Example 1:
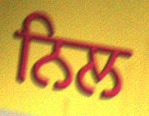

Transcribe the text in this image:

ਨਿਲ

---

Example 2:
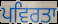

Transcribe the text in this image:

ਪਵਿਰਤਾ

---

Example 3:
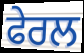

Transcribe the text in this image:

ਫੇਰਲ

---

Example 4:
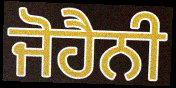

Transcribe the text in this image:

ਜੋਹੈਨੀ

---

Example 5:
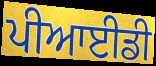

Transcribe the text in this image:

ਪੀਆਈਡੀ